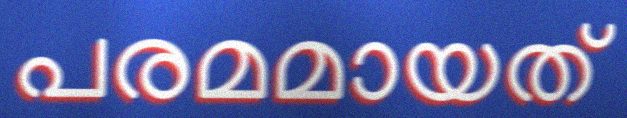
പരമമായത്